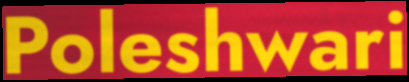
Poleshwari